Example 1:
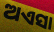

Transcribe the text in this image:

ଅଏସା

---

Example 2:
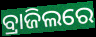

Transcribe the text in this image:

ବ୍ରାଜିଲରେ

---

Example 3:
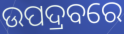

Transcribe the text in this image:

ଉପଦ୍ରବରେ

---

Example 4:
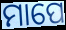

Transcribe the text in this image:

ମାପେ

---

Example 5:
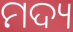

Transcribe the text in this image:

ମଦ୍ୟ